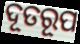
ଦୂତରୂପ